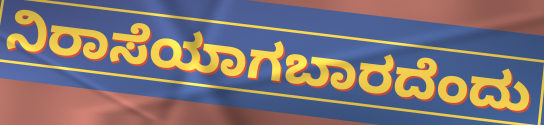
ನಿರಾಸೆಯಾಗಬಾರದೆಂದು